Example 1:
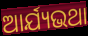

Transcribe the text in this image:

ଆର୍ଯ୍ୟଭଥା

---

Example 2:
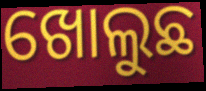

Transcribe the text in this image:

ଖୋଲୁଛ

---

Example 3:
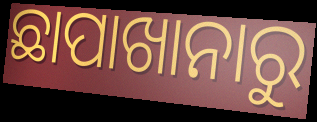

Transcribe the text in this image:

ଛାପାଖାନାରୁ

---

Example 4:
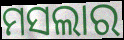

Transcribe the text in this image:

ମସଲାର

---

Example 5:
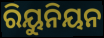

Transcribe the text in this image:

ରିୟୁନିୟନ